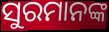
ସୁରମାନଙ୍କ